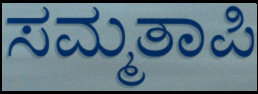
ಸಮ್ಮತಾಪಿ